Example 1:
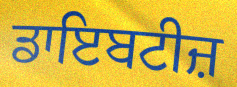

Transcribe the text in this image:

ਡਾਇਬਟੀਜ਼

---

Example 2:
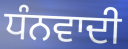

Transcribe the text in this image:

ਧੰਨਵਾਦੀ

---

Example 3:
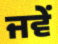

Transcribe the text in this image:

ਜਵੇਂ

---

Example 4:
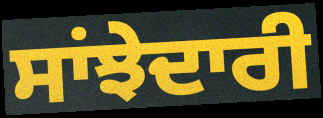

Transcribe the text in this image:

ਸਾਂਝੇਦਾਰੀ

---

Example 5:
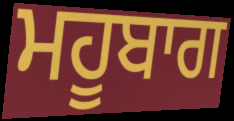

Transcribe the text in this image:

ਮਹੂਬਾਗ